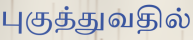
புகுத்துவதில்